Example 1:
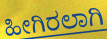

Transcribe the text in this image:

ಹೀಗಿರಲಾಗಿ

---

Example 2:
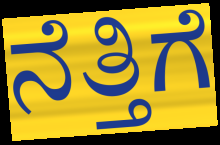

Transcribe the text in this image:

ನೆತ್ತಿಗೆ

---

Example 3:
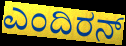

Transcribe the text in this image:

ಎಂದಿರನ್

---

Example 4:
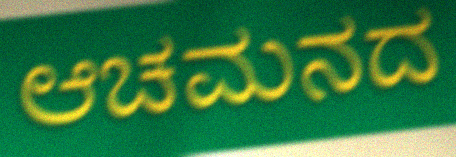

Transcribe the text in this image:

ಆಚಮನದ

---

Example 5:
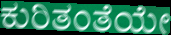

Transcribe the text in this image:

ಕುರಿತಂತೆಯೇ